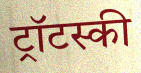
ट्रॉटस्की